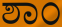
ಶಾಂ